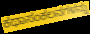
ಕಥಾಸಂಕಲನಗಳನ್ನು